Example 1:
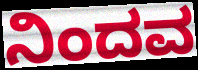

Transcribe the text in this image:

ನಿಂದವ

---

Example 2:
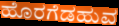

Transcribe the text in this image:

ಹೊರಗೆಡಹುವ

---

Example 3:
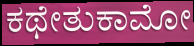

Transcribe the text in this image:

ಕಥೇತುಕಾಮೋ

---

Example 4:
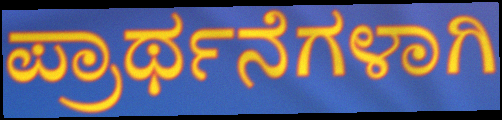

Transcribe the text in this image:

ಪ್ರಾರ್ಥನೆಗಳಾಗಿ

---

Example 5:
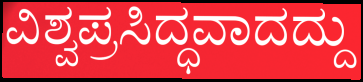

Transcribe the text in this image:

ವಿಶ್ವಪ್ರಸಿದ್ಧವಾದದ್ದು